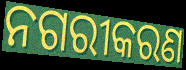
ନଗରୀକରଣ